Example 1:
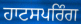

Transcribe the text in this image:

ਹਾਟਸਪਰਿੰਗ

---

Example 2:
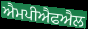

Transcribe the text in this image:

ਐਮਪੀਐਫਐਲ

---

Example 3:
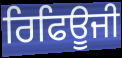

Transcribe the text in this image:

ਰਿਫਿਊਜੀ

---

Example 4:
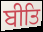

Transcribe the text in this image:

ਬੀਤਿ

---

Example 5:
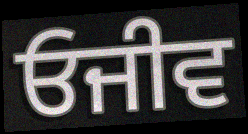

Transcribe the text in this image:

ਓਜੀਵ